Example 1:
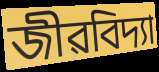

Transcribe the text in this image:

জীৱবিদ্যা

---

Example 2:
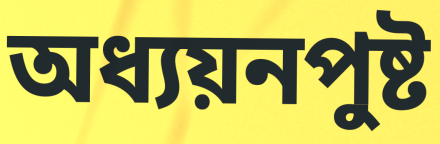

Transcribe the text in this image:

অধ্যয়নপুষ্ট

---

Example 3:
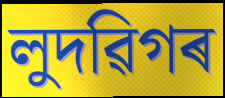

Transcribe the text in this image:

লুদৱিগৰ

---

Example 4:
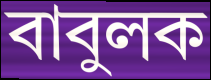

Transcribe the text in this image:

বাবুলক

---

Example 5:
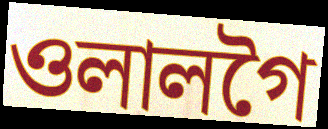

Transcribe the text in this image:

ওলালগৈ